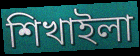
শিখাইলা